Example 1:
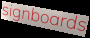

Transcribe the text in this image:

signboards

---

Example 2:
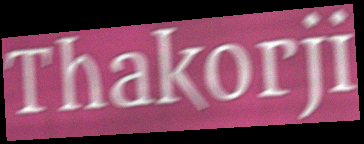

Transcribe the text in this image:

Thakorji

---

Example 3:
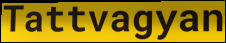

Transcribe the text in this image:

Tattvagyan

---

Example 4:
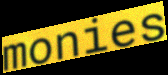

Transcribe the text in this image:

monies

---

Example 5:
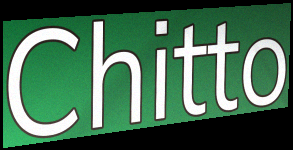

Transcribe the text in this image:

Chitto